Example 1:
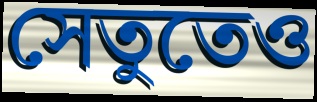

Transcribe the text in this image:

সেতুতেও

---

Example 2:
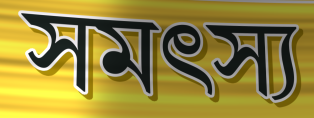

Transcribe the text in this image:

সমৎস্য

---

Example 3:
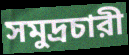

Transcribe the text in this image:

সমুদ্রচারী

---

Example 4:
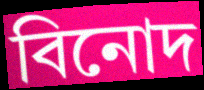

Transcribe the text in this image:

বিনোদ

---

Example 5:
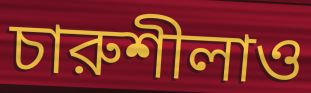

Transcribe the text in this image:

চারুশীলাও